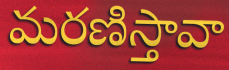
మరణిస్తావా